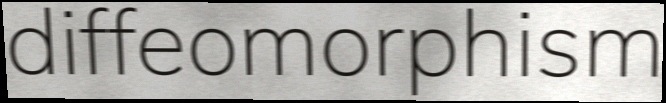
diffeomorphism